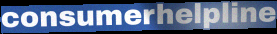
consumerhelpline